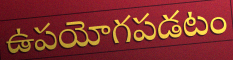
ఉపయోగపడటం